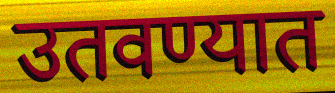
उतवण्यात